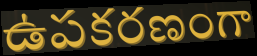
ఉపకరణంగా